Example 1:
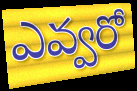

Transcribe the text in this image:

ఎవ్వరో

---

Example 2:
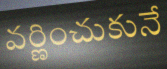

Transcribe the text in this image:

వర్ణించుకునే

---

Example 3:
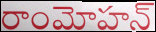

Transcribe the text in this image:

రాంమోహన్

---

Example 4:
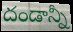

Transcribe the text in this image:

దండాన్నీ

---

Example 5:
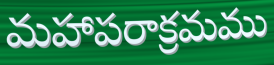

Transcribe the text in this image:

మహాపరాక్రమము